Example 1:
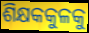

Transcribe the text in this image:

ଶିକ୍ଷକକୁଳକୁ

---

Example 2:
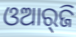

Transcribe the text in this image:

ଓଆର୍‌ଜି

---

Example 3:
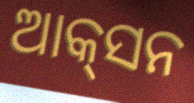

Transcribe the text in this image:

ଆକ୍‌ସନ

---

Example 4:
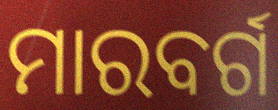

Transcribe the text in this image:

ମାରବର୍ଗ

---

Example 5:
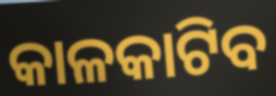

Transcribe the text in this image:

କାଳକାଟିବ